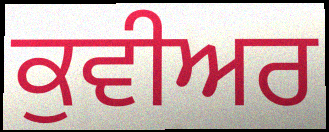
ਕੁਵੀਅਰ